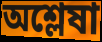
অশ্লেষা